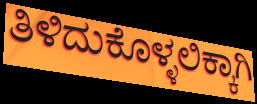
ತಿಳಿದುಕೊಳ್ಳಲಿಕ್ಕಾಗಿ